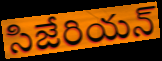
సిజేరియన్